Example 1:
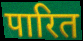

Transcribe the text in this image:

पारित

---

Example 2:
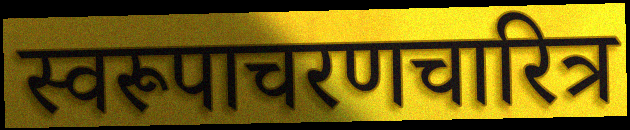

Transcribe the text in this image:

स्वरूपाचरणचारित्र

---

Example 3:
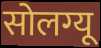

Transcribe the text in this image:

सोलग्यू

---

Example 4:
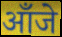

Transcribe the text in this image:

आँजे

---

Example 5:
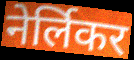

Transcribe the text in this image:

नेर्लिकर